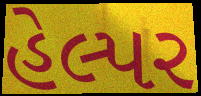
હેલ્પર